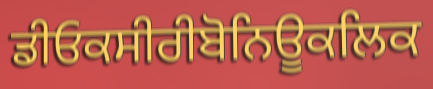
ਡੀਓਕਸੀਰੀਬੋਨਿਊਕਲਿਕ